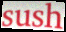
sush